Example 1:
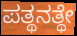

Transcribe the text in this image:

ಪತ್ಥನತ್ಥೇ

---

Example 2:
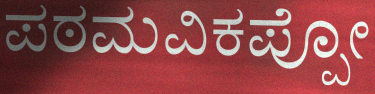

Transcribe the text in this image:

ಪಠಮವಿಕಪ್ಪೋ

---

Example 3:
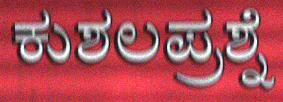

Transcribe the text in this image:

ಕುಶಲಪ್ರಶ್ನೆ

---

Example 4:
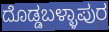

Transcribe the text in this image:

ದೊಡ್ಡಬಳ್ಳಾಪುರ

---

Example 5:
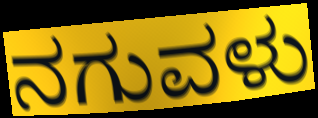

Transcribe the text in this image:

ನಗುವಳು